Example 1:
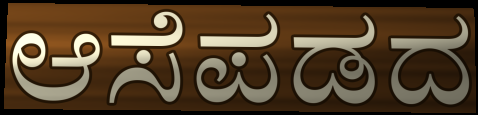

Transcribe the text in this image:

ಆಸೆಪಡದ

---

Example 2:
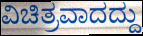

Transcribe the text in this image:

ವಿಚಿತ್ರವಾದದ್ದು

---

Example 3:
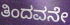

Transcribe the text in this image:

ತಿಂದವನೇ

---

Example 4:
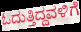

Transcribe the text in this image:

ಓದುತ್ತಿದ್ದವಳಿಗೆ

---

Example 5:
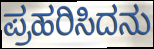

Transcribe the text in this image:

ಪ್ರಹರಿಸಿದನು